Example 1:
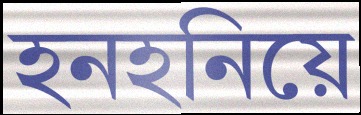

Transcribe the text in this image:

হনহনিয়ে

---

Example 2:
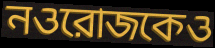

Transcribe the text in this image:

নওরোজকেও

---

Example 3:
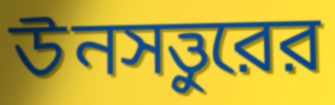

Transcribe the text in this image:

উনসত্তুরের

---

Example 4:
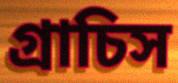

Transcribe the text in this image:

গ্রাচিস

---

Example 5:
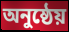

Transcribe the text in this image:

অনুষ্ঠেয়